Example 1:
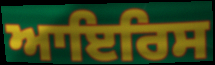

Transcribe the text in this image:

ਆਇਰਿਸ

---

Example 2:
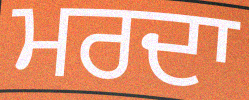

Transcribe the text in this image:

ਮਰਦਾ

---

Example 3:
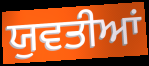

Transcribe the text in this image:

ਯੁਵਤੀਆਂ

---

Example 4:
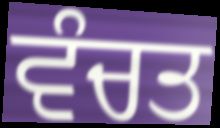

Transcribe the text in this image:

ਵੰਚਤ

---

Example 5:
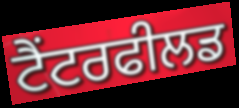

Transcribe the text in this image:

ਟੈਂਟਰਫੀਲਡ